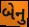
બેનુ